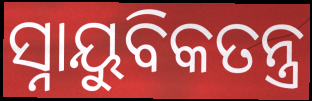
ସ୍ନାୟୁବିକତନ୍ତ୍ର